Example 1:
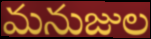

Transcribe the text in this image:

మనుజుల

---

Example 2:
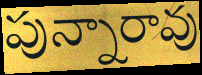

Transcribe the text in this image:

పున్నారావు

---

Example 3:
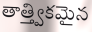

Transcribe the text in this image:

తాత్త్వికమైన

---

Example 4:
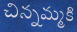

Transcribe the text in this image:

చిన్నమ్మకి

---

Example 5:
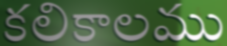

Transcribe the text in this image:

కలికాలము